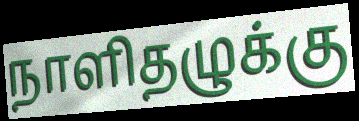
நாளிதழுக்கு